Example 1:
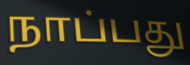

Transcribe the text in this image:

நாப்பது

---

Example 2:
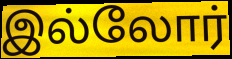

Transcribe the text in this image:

இல்லோர்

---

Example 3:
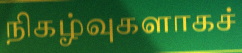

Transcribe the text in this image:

நிகழ்வுகளாகச்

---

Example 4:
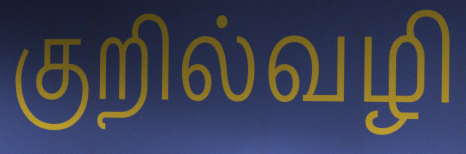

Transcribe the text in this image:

குறில்வழி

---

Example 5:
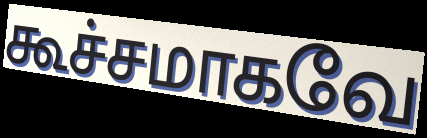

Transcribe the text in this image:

கூச்சமாகவே